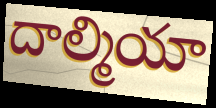
దాల్మియా